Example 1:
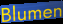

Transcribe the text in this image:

Blumen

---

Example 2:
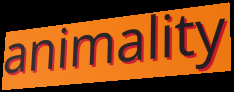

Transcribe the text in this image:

animality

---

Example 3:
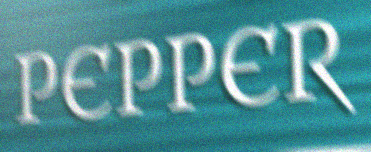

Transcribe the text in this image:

PEPPER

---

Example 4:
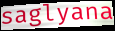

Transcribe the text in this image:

saglyana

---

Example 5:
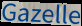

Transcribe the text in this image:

Gazelle